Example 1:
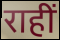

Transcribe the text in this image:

राहीं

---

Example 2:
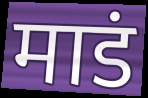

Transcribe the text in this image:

माडं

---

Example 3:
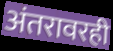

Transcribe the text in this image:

अंतरावरही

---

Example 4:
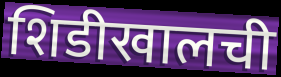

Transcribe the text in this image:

शिडीखालची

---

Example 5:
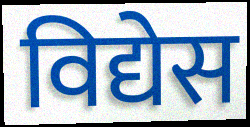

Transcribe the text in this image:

विद्येस